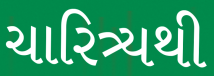
ચારિત્ર્યથી